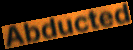
Abducted